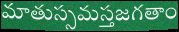
మాతుస్సమస్తజగతాం